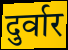
दुर्वार